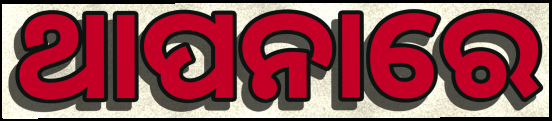
ଥାପନାରେ